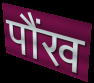
पौंख